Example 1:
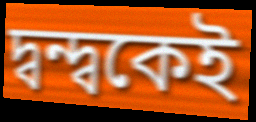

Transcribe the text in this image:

দ্বন্দ্বকেই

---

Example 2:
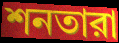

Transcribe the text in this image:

শনতারা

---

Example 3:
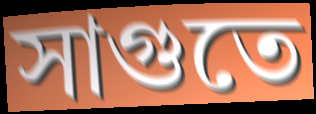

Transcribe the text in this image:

সাগুতে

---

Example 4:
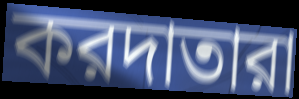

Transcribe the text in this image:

করদাতারা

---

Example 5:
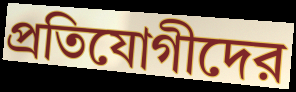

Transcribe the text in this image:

প্রতিযোগীদের